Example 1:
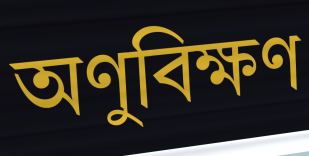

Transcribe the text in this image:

অণুবিক্ষণ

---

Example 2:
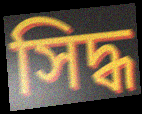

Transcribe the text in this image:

সিদ্ধ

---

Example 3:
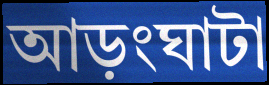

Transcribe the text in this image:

আড়ংঘাটা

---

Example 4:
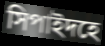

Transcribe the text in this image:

সিপাইদহে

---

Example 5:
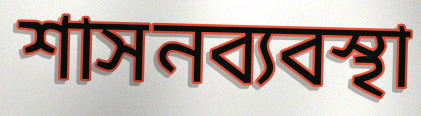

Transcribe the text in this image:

শাসনব্যবস্থা